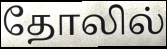
தோலில்